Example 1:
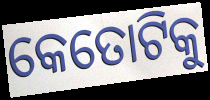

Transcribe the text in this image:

କେତୋଟିକୁ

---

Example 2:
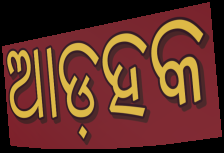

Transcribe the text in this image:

ଆଡ଼ହକ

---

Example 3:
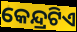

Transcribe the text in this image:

କେନ୍ଦ୍ରଟିଏ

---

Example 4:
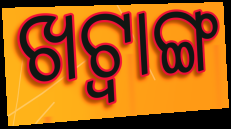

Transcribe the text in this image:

ଖଟ୍ଵାଙ୍ଗ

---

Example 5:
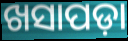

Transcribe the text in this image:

ଖସାପଡ଼ା